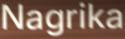
Nagrika